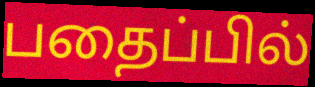
பதைப்பில்